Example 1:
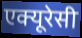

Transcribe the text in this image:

एक्यूरेसी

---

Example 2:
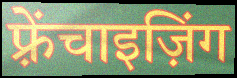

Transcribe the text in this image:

फ़्रेंचाइज़िंग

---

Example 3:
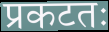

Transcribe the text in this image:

प्रकटतः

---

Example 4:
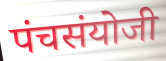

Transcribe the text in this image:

पंचसंयोजी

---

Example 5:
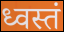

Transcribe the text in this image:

ध्वस्तं